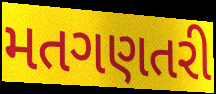
મતગણતરી